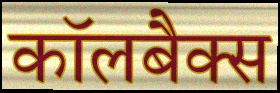
कॉलबैक्स